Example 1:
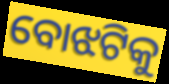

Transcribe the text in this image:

ବୋଝଟିକୁ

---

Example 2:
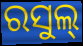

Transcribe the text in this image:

ରସୁଲ୍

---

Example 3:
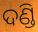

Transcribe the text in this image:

ଦଣ୍ଡି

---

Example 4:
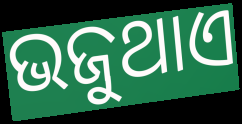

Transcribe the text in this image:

ଭଜୁଥାଏ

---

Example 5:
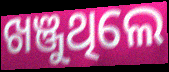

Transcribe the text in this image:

ଖଞ୍ଜୁଥିଲେ